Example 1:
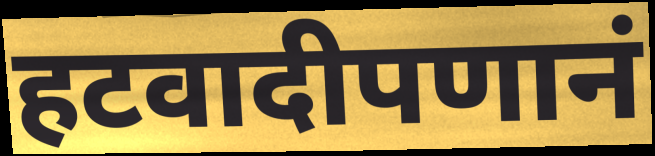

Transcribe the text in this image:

हटवादीपणानं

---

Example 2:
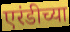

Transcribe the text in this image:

एरंडीच्या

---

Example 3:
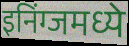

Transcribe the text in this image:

इनिंग्जमध्ये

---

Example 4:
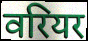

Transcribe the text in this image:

वरियर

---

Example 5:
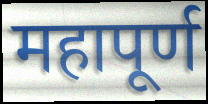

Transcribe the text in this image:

महापूर्ण